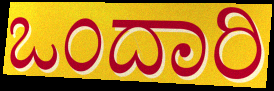
ಒಂದಾರಿ